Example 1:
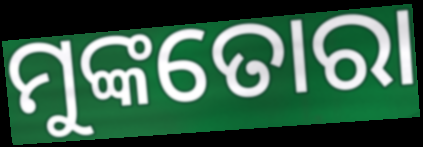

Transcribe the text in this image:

ମୁଙ୍କତୋରା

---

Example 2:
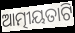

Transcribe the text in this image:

ଆତ୍ମୀୟତାଟି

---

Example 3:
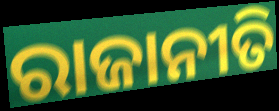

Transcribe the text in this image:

ରାଜାନୀତି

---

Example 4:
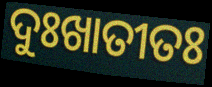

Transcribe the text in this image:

ଦୁଃଖାତୀତଃ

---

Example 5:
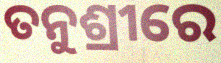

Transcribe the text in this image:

ତନୁଶ୍ରୀରେ